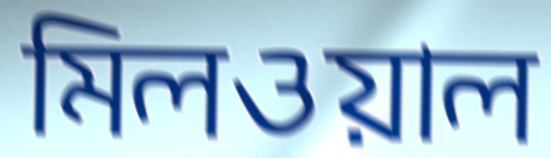
মিলওয়াল